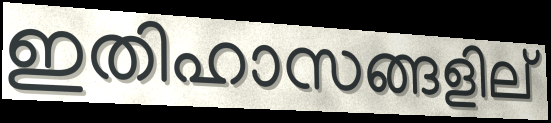
ഇതിഹാസങ്ങളില്